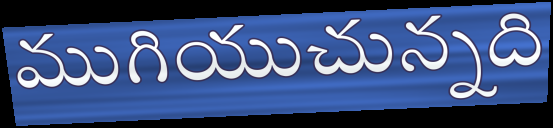
ముగియుచున్నది